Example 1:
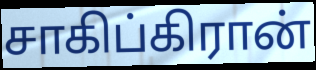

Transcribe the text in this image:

சாகிப்கிரான்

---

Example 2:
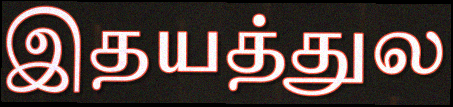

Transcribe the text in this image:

இதயத்துல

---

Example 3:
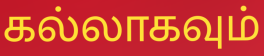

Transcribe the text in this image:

கல்லாகவும்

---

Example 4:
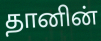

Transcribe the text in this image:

தானின்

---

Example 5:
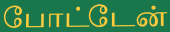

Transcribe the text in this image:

போட்டேன்